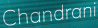
Chandrani